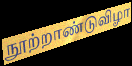
நூற்றாண்டுவிழா